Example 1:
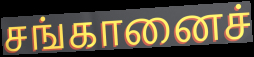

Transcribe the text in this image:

சங்கானைச்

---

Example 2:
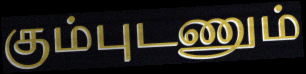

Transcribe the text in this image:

கும்புடணும்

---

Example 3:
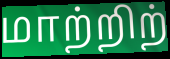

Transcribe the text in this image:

மாற்றிற்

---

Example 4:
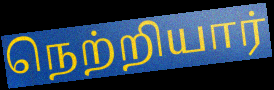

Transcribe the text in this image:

நெற்றியார்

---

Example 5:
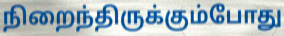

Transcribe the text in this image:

நிறைந்திருக்கும்போது